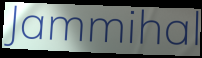
Jammihal